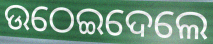
ଉଠେଇଦେଲେ